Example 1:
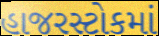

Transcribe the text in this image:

હાજરસ્ટોકમાં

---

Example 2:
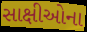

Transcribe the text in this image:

સાક્ષીઓના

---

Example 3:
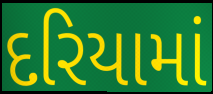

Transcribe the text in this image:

દરિયામાં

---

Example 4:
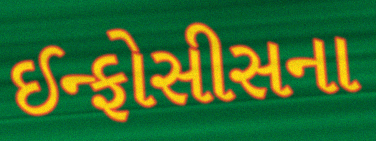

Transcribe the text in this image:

ઈન્ફોસીસના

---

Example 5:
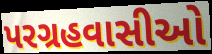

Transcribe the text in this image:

પરગ્રહવાસીઓ